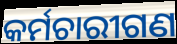
କର୍ମଚାରୀଗଣ